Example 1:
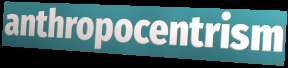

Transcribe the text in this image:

anthropocentrism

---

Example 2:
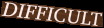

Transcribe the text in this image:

DIFFICULT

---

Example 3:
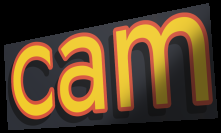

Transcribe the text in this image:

cam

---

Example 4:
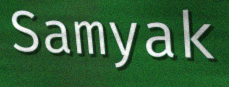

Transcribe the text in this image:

Samyak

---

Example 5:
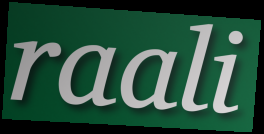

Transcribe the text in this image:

raali